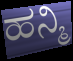
ಹನ್ಮಿ